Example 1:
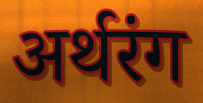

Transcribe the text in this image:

अर्थरंग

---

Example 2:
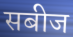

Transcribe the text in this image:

सबीज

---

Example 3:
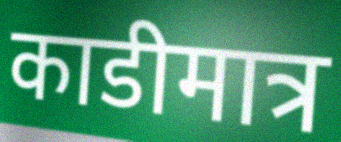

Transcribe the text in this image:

काडीमात्र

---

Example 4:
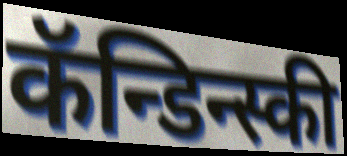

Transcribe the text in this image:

कॅन्डिन्स्की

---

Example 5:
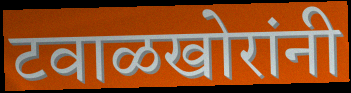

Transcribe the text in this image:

टवाळखोरांनी